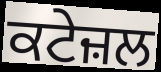
ਕਟੇਜ਼ਲ